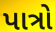
પાત્રો